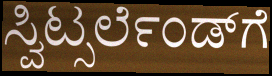
ಸ್ವಿಟ್ಸರ್ಲೆಂಡ್‌ಗೆ